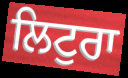
ਲਿਟੁਰਾ